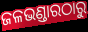
ଜଳଭଣ୍ଡାରଠାରୁ